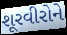
શૂરવીરોને